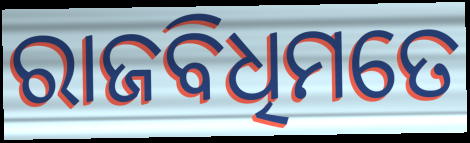
ରାଜବିଧିମତେ